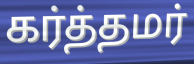
கர்த்தமர்